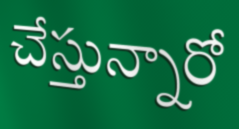
చేస్తున్నారో